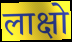
लाक्षो